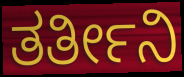
ತರ್ತೀನಿ